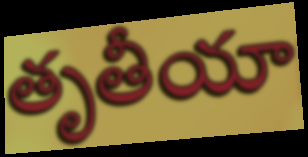
తృతీయా